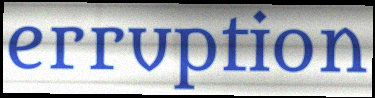
erruption